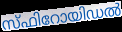
സ്ഫിറോയിഡൽ